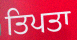
ਤਿਪਤਾ